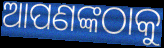
ଆପଣଙ୍କଠାକୁ